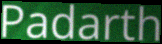
Padarth